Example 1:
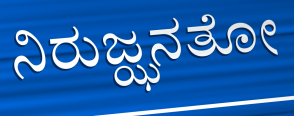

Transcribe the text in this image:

ನಿರುಜ್ಝನತೋ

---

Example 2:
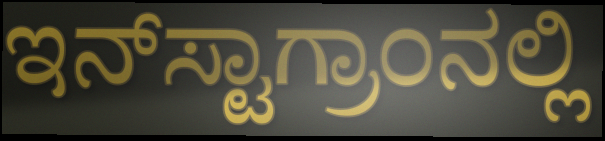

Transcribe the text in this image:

ಇನ್‌ಸ್ಟಾಗ್ರಾಂನಲ್ಲಿ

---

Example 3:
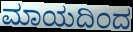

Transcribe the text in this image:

ಮಾಯದಿಂದ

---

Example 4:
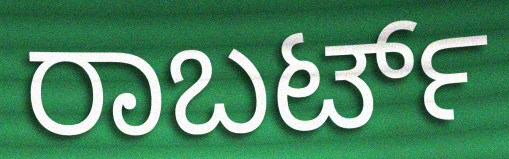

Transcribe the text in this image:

ರಾಬರ್ಟ್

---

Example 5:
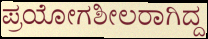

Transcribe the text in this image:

ಪ್ರಯೋಗಶೀಲರಾಗಿದ್ದ